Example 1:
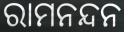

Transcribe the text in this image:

ରାମନନ୍ଦନ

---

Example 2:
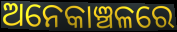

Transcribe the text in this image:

ଅନେକାଞ୍ଚଳରେ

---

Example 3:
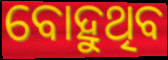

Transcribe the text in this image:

ବୋହୁଥିବ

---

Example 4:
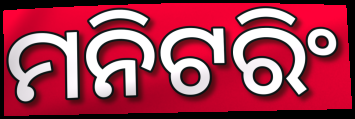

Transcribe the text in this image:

ମନିଟରିଂ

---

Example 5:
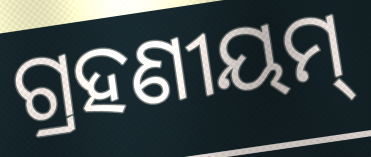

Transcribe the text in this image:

ଗ୍ରହଣୀୟମ୍